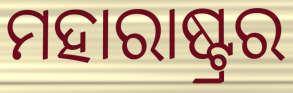
ମହାରାଷ୍ଟ୍ରର